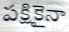
పక్షికైనా